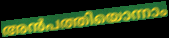
അൻപത്തിയൊന്നാം